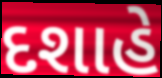
દશાહે